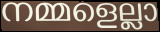
നമ്മളെല്ലാ